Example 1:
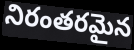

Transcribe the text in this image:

నిరంతరమైన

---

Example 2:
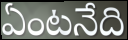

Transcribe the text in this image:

ఏంటనేది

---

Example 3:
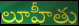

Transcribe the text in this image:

లూహీతు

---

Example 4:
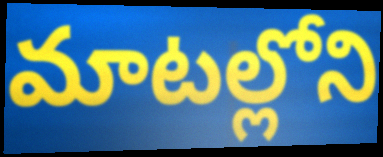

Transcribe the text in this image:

మాటల్లోని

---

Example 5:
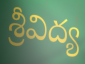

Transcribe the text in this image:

శ్రీవిద్య